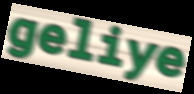
geliye